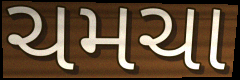
ચમચા